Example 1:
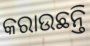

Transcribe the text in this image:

କରାଉଛନ୍ତି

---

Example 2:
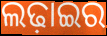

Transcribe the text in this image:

ଲଢ଼ାଇର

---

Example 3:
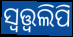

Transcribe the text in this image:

ସ୍ୱତ୍ତ୍ୱଲିପି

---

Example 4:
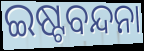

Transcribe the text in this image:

ଇଷ୍ଟବନ୍ଦନା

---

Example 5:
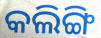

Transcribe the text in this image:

କଲିଙ୍ଗି